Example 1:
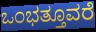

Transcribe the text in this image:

ಒಂಭತ್ತೂವರೆ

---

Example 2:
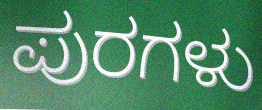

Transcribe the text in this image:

ಪುರಗಳು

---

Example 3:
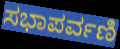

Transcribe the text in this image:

ಸಭಾಪರ್ವಣಿ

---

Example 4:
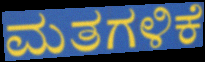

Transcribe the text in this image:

ಮತಗಳಿಕೆ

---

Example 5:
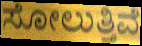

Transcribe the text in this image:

ಸೋಲುತ್ತಿವೆ